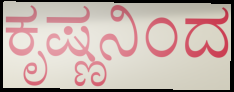
ಕೃಷ್ಣನಿಂದ